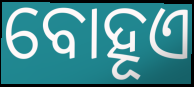
ବୋହୂଏ